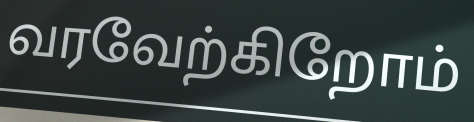
வரவேற்கிறோம்